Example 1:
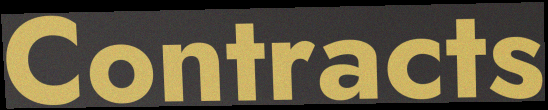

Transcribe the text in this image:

Contracts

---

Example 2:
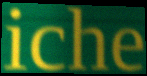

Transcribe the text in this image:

iche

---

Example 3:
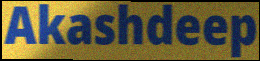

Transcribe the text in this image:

Akashdeep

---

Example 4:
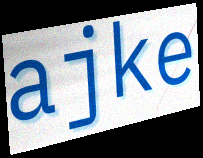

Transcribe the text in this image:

ajke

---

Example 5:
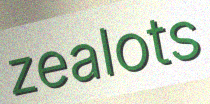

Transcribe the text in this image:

zealots